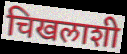
चिखलाशी